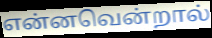
என்னவென்றால்